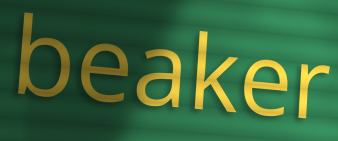
beaker